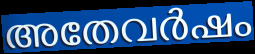
അതേവർഷം